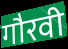
गौरवी